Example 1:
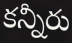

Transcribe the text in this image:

కన్నీరు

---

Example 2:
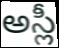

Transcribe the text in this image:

అస్లీ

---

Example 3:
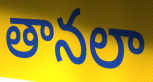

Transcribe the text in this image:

తానలా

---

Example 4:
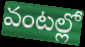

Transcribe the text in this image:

వంటల్లో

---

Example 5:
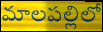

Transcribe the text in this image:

మాలపల్లిలో